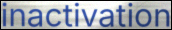
inactivation